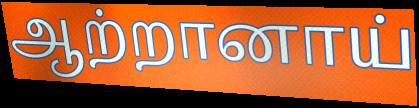
ஆற்றானாய்